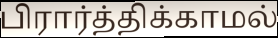
பிரார்த்திக்காமல்